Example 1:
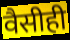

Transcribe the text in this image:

वैसीही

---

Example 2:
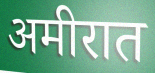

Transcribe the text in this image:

अमीरात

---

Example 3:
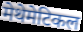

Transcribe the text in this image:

मेथेमेटिकल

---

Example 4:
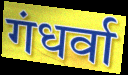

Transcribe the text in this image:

गंधर्वा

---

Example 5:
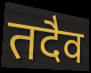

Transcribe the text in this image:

तदैव